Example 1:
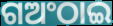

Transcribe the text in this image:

ଗଅଂଠାଇ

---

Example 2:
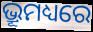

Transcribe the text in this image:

ଭ୍ରୂମଧ୍ୟରେ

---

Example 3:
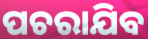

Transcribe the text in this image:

ପଚରାଯିବ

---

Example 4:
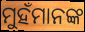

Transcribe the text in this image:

ମୁହଁମାନଙ୍କ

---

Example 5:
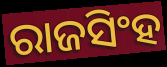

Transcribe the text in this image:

ରାଜସିଂହ